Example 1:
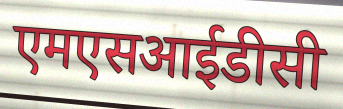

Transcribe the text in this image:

एमएसआईडीसी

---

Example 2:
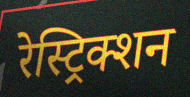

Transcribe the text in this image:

रेस्ट्रिक्शन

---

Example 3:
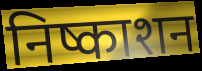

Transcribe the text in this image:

निष्काशन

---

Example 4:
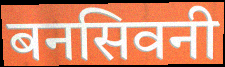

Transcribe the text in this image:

बनसिवनी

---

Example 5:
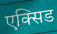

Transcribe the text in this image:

एक्सिड